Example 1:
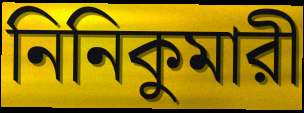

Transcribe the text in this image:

নিনিকুমারী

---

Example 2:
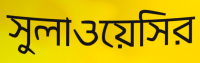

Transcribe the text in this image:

সুলাওয়েসির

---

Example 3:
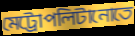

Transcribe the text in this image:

মেট্রোপলিটানোতে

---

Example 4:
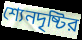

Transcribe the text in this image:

শ্যেনদৃষ্টির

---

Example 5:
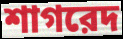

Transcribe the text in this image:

শাগরেদ